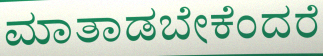
ಮಾತಾಡಬೇಕೆಂದರೆ